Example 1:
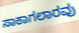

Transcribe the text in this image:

ಸಾಕಾಗಲಾರವು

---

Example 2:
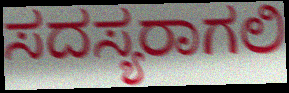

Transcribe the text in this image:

ಸದಸ್ಯರಾಗಲಿ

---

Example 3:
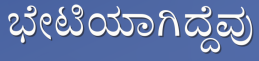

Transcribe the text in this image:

ಭೇಟಿಯಾಗಿದ್ದೆವು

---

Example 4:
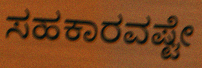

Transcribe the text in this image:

ಸಹಕಾರವಷ್ಟೇ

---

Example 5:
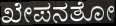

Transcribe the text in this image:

ಖೇಪನತೋ